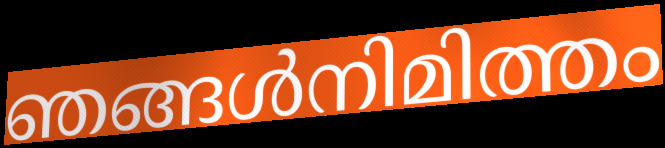
ഞങ്ങൾനിമിത്തം